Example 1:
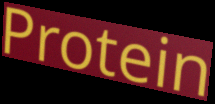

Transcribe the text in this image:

Protein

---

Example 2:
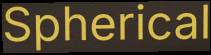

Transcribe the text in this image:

Spherical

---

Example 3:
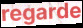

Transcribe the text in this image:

regarde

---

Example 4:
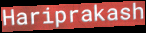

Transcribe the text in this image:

Hariprakash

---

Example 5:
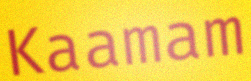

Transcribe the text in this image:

Kaamam